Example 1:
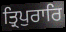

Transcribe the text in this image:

ਤ੍ਰਿਪੁਰਾਰਿ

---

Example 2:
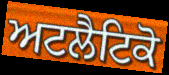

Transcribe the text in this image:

ਅਟਲੈਟਿਕੋ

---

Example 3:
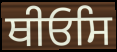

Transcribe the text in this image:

ਥੀਓਸਿ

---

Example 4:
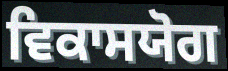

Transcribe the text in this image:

ਵਿਕਾਸਯੋਗ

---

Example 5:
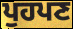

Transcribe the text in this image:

ਪੁਹਪਣ